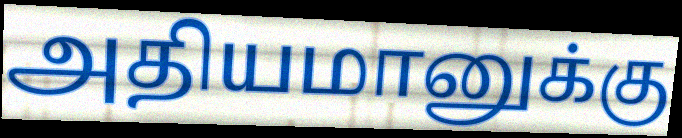
அதியமானுக்கு